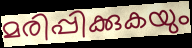
മരിപ്പിക്കുകയും